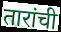
तारांची